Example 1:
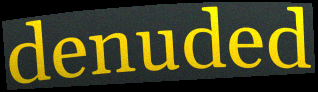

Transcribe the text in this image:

denuded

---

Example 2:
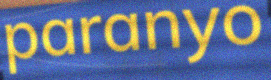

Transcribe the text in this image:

paranyo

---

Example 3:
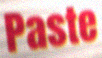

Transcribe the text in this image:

Paste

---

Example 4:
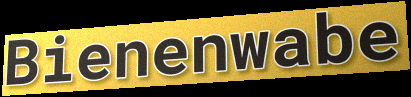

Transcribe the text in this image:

Bienenwabe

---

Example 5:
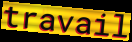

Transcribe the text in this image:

travail